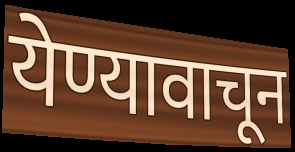
येण्यावाचून